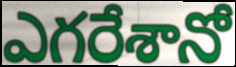
ఎగరేశానో